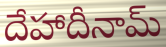
దేహాదీనామ్